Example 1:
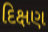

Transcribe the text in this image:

દિક્ષણ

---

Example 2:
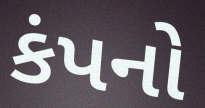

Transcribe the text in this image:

કંપનો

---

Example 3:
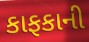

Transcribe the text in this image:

કાફકાની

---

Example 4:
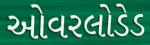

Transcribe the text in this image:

ઓવરલોડેડ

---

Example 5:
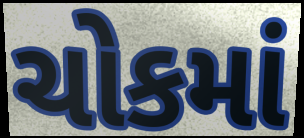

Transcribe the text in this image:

ચોકમાં